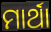
ମାର୍ଥା